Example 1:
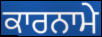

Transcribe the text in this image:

ਕਾਰਨਾਮੇ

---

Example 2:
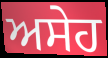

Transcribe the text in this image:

ਅਸੇਹ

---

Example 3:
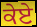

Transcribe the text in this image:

ਕੇਏ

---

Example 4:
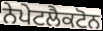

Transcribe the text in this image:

ਨੇਪੇਟਲੈਕਟੋਨ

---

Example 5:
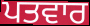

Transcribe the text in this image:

ਪਤਵਾਰ